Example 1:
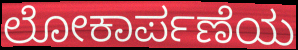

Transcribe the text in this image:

ಲೋಕಾರ್ಪಣೆಯ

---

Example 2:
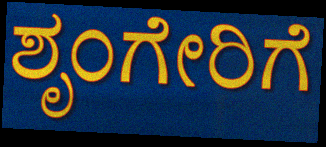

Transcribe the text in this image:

ಶೃಂಗೇರಿಗೆ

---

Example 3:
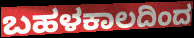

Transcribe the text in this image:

ಬಹಳಕಾಲದಿಂದ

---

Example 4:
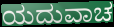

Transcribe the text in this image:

ಯದುವಾಚ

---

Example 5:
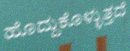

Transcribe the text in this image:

ಹೊದ್ದುಕೊಳ್ಳುತ್ತದೆ